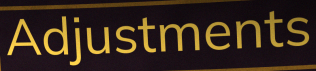
Adjustments